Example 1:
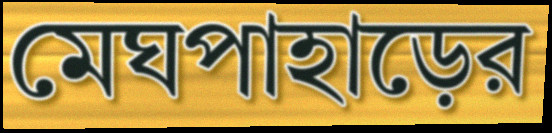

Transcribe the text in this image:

মেঘপাহাড়ের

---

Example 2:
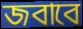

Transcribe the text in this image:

জবাবে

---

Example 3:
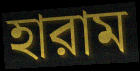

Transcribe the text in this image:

হারাম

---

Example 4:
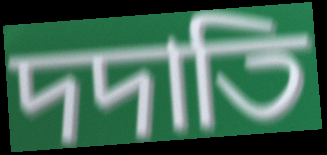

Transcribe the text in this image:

দদাতি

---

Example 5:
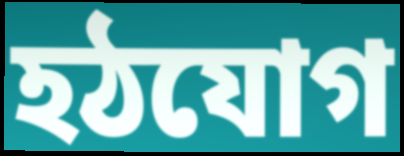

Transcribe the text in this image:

হঠযোগ